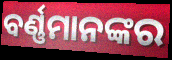
ବର୍ଣ୍ଣମାନଙ୍କର